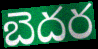
బెదర